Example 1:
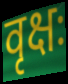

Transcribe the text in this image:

वृक्षः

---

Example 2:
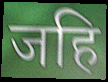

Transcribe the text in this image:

जहि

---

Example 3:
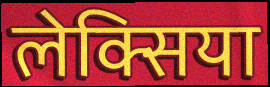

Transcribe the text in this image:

लेक्सिया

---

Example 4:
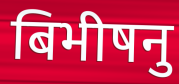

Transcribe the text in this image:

बिभीषनु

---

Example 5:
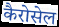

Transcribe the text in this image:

कैरोसेल